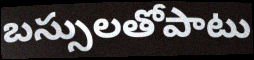
బస్సులతోపాటు